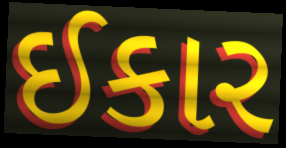
ઈકાર